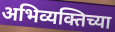
अभिव्यक्तिच्या